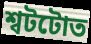
শ্বটটোত